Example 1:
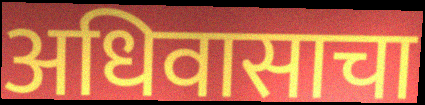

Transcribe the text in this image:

अधिवासाचा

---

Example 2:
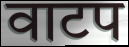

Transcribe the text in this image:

वाटप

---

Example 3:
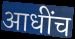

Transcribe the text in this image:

आधींच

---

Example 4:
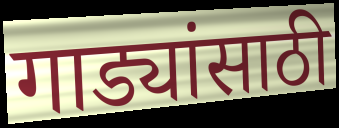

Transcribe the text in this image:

गाड्यांसाठी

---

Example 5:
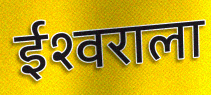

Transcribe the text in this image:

ईश्वराला